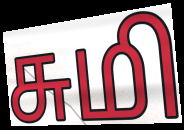
சுமி